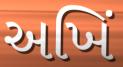
અખિં